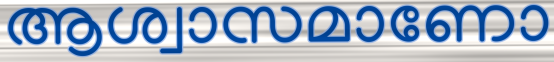
ആശ്വാസമാണോ